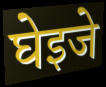
घेइजे